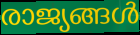
രാജ്യങ്ങൾ